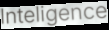
Inteligence